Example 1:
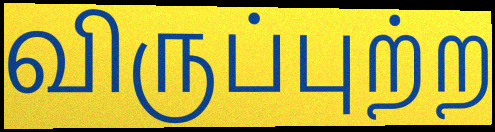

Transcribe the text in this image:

விருப்புற்ற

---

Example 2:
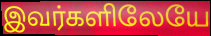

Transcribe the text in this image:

இவர்களிலேயே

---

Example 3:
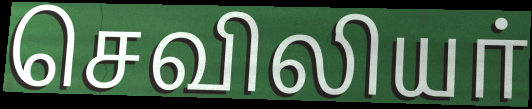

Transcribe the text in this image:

செவிலியர்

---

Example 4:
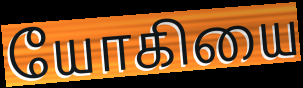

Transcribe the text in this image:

யோகியை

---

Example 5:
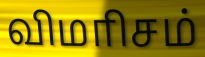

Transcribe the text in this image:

விமரிசம்